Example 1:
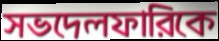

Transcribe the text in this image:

সভদেলফারিকে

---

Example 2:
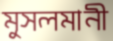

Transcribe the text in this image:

মুসলমানী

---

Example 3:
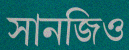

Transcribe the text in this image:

সানজিও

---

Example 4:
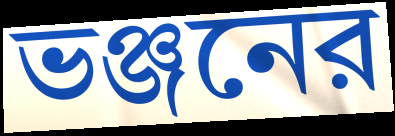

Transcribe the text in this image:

ভঞ্জনের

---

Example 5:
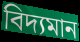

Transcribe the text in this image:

বিদ্যমান